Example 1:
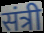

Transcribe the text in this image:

संत्री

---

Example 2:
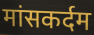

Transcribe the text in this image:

मांसकर्दम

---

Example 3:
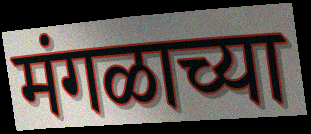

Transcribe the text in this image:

मंगळाच्या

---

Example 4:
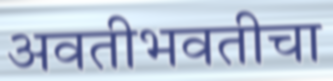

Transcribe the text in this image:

अवतीभवतीचा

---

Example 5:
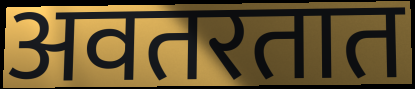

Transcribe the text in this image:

अवतरतात